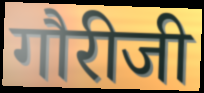
गौरीजी